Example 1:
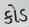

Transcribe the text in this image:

કોડ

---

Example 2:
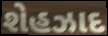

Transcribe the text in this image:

શેહઝાદ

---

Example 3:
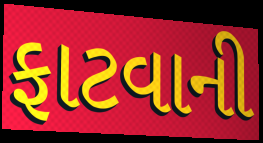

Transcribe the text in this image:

ફાટવાની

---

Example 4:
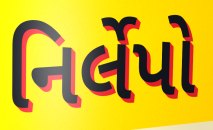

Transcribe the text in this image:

નિર્લેપો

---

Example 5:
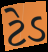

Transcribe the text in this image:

ટેડ